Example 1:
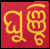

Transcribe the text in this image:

ଘୁଞ୍ଚି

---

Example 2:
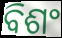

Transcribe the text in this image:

ବିଶଂ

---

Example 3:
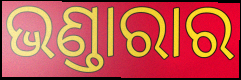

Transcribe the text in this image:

ଭଣ୍ଡାରାର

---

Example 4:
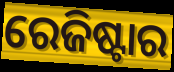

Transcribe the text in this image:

ରେଜିଷ୍ଟାର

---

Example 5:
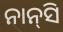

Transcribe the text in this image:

ନାନ୍‌ସି